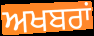
ਅਖਬਰਾਂ